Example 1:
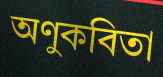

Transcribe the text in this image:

অণুকবিতা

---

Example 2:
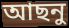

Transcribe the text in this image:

আছনু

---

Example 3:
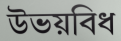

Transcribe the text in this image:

উভয়বিধ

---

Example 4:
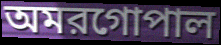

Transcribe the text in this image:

অমরগোপাল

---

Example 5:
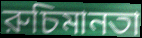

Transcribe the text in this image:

রুচিমানতা